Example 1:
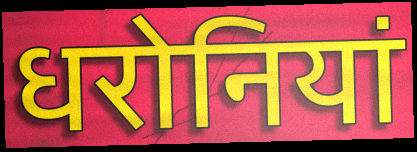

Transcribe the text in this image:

धरोनियां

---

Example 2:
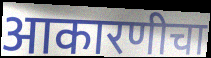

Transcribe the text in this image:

आकारणीचा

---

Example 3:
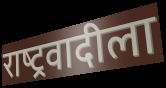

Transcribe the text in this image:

राष्ट्रवादीला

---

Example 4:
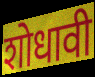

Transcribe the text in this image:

शोधावी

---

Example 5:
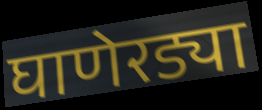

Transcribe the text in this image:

घाणेरड्या